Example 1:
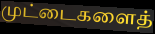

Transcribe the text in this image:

முட்டைகளைத்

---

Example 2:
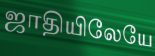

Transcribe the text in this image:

ஜாதியிலேயே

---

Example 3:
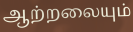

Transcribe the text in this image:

ஆற்றலையும்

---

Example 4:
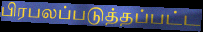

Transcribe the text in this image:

பிரபலப்படுத்தப்பட்ட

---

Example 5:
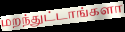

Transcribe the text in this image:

மறந்துட்டாங்களா